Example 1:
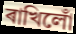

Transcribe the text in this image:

ৰাখিলোঁ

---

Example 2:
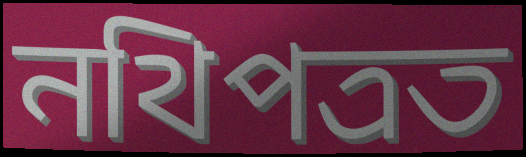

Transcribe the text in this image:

নথিপত্ৰত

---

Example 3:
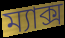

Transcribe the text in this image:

ম্যাক্স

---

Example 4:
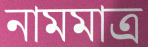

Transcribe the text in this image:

নামমাত্ৰ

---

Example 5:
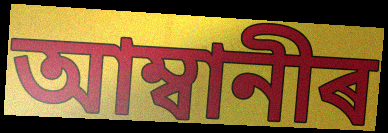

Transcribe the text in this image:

আম্বানীৰ